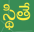
స్థితే